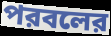
পরবলের